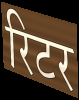
रिटर